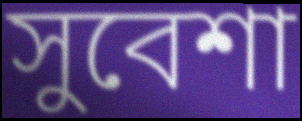
সুবেশা